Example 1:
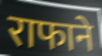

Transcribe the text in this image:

राफाने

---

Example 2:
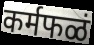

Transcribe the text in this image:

कर्मफळं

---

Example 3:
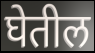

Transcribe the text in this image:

घेतील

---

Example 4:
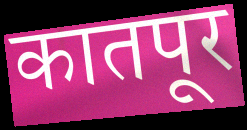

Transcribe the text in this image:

कातपूर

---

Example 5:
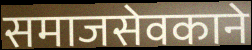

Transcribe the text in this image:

समाजसेवकाने